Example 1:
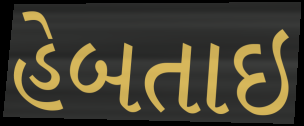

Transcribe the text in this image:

હેબતાઇ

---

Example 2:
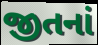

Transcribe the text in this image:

જીતનાં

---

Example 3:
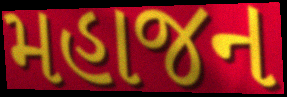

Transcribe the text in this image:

મહાજન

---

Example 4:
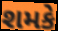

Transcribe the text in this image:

શમકે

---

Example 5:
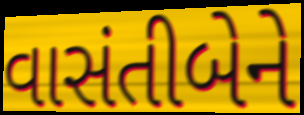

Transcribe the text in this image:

વાસંતીબેને